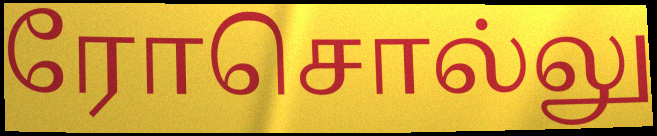
ரோசொல்லு